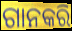
ଗାନକରି